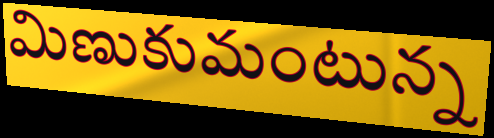
మిణుకుమంటున్న